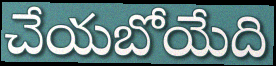
చేయబోయేది